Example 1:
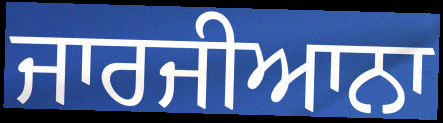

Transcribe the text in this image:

ਜਾਰਜੀਆਨਾ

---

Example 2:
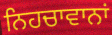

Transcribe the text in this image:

ਨਿਹਚਾਵਾਨਾਂ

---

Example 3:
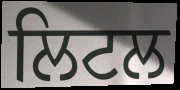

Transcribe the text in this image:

ਲਿਟਲ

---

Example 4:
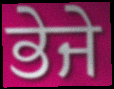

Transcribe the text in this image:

ਭੇਜੇ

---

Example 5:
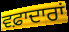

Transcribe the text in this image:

ਵਫ਼ਾਦਾਰਾਂ